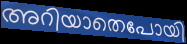
അറിയാതെപോയി